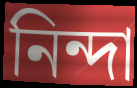
নিন্দা